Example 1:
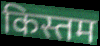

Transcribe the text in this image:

किस्तम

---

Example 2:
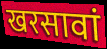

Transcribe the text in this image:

खरसावां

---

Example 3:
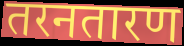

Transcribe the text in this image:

तरनतारण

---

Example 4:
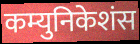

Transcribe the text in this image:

कम्‍युनिकेशंस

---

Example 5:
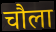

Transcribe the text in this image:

चौला